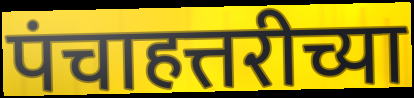
पंचाहत्तरीच्या